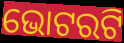
ଭୋଟରଟି